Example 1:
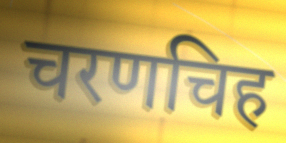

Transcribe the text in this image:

चरणचिह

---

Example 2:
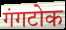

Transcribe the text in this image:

गंगटोक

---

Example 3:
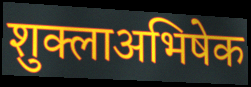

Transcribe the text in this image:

शुक्लाअभिषेक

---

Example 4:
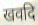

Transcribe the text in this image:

खवदि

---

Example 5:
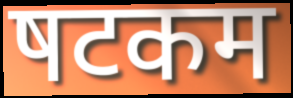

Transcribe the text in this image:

षटकम